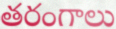
తరంగాలు